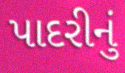
પાદરીનું